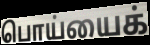
பொய்யைக்